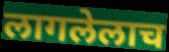
लागलेलाच